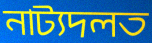
নাট্যদলত